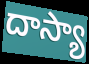
దాస్యా